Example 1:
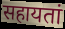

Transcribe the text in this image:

सहायतां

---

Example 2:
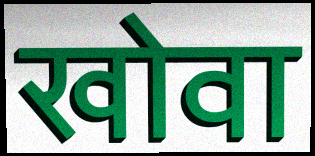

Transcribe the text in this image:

खोवा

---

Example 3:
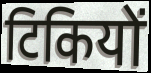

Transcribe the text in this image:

टिकियों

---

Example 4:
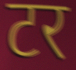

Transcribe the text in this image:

टर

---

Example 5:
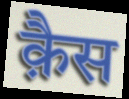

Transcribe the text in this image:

क़ैस